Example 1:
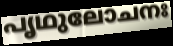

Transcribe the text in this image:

പൃഥുലോചനഃ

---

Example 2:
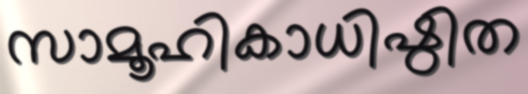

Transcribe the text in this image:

സാമൂഹികാധിഷ്ഠിത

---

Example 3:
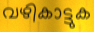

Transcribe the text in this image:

വഴികാട്ടുക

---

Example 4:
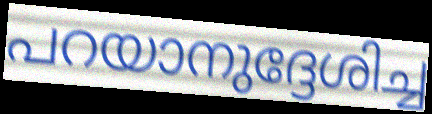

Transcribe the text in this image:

പറയാനുദ്ദേശിച്ച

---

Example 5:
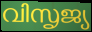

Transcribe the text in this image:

വിസൃജ്യ